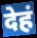
देहं